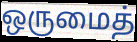
ஒருமைத்